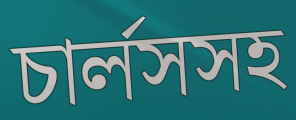
চার্লসসহ